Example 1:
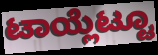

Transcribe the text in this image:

ಟಾಯ್ಲೆಟ್ಟೂ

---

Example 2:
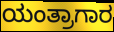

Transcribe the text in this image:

ಯಂತ್ರಾಗಾರ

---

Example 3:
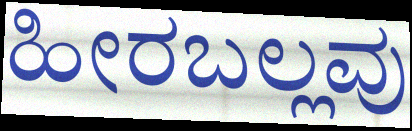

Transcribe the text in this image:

ಹೀರಬಲ್ಲವು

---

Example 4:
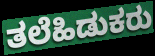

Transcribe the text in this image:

ತಲೆಹಿಡುಕರು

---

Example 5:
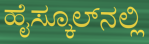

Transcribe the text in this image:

ಹೈಸ್ಕೂಲ್‌ನಲ್ಲಿ